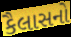
કૈલાસનો